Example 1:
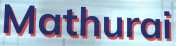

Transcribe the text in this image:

Mathurai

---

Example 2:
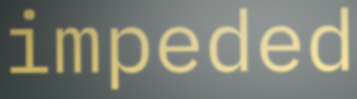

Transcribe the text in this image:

impeded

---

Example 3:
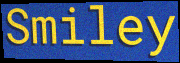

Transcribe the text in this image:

Smiley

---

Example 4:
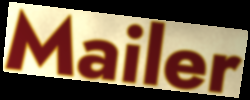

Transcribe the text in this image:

Mailer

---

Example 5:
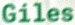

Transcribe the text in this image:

Giles